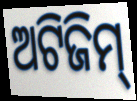
ଅଟିଜିମ୍